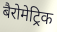
बैरोमेट्रिक